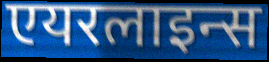
एयरलाइन्स